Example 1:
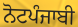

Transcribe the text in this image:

ਨੋਟਪੰਜਾਬੀ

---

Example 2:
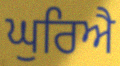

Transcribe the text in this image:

ਘੁਰਿਐ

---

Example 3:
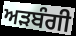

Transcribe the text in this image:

ਅੜਬੰਗੀ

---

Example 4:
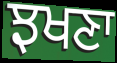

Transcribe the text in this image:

ਝਖਣਾ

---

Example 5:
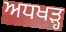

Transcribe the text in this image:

ਅਧਖੜ੍ਹ